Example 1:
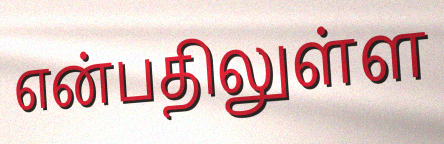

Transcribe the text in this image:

என்பதிலுள்ள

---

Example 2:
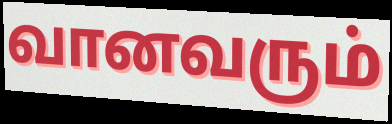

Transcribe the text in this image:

வானவரும்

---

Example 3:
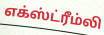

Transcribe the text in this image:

எக்ஸ்ட்ரீம்லி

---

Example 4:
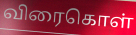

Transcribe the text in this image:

விரைகொள்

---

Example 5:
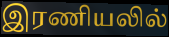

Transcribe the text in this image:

இரணியலில்